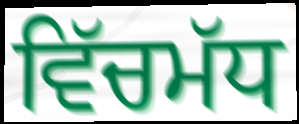
ਵਿੱਚਮੱਧ